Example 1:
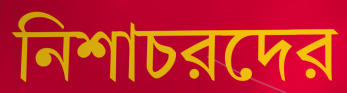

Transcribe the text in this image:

নিশাচরদের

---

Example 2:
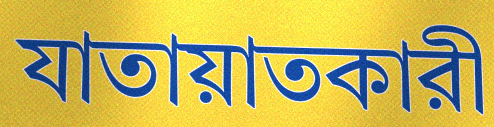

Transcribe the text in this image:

যাতায়াতকারী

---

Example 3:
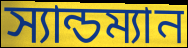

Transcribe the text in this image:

স্যান্ডম্যান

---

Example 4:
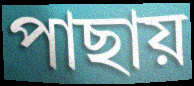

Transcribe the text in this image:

পাছায়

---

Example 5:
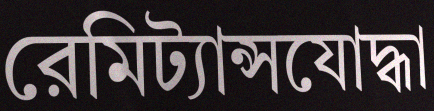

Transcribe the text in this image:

রেমিট্যান্সযোদ্ধা